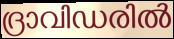
ദ്രാവിഡരിൽ